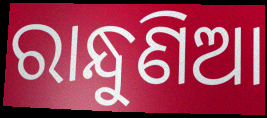
ରାନ୍ଧୁଣିଆ